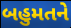
બહુમતને